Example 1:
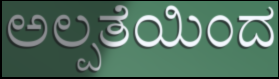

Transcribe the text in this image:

ಅಲ್ಪತೆಯಿಂದ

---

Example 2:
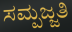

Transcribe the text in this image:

ಸಮ್ಪಜ್ಜತಿ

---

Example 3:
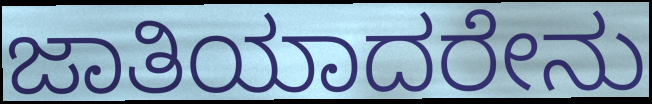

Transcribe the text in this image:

ಜಾತಿಯಾದರೇನು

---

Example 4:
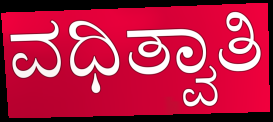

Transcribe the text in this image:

ವಧಿತ್ವಾತಿ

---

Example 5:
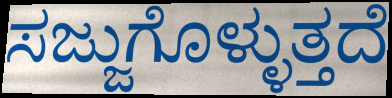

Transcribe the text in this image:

ಸಜ್ಜುಗೊಳ್ಳುತ್ತದೆ